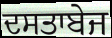
ਦਸਤਾਬੇਜ